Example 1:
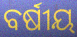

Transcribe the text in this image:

ବର୍ଷୀୟ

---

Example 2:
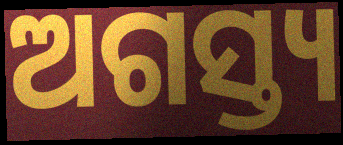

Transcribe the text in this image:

ଅଗସ୍ତ୍ୟ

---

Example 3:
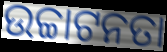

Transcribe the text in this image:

ଉଚ୍ଚାଟନତା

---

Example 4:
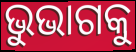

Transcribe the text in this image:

ଭୁଭାଗକୁ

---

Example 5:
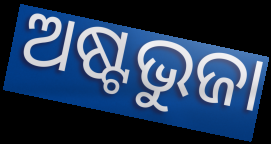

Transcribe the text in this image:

ଅଷ୍ଟଭୁଜା